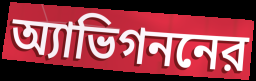
অ্যাভিগননের